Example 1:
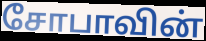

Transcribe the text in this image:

சோபாவின்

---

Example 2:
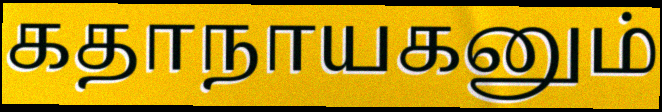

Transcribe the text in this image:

கதாநாயகனும்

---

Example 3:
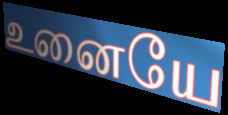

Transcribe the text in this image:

உனையே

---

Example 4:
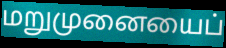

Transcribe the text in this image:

மறுமுனையைப்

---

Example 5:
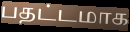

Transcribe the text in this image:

பதட்டமாக